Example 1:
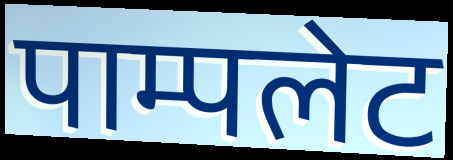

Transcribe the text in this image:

पाम्पलेट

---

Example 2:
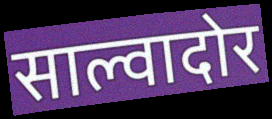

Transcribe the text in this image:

साल्वादोर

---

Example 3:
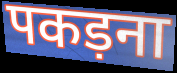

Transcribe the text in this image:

पकड़ना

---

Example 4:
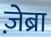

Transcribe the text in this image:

ज़ेब्रा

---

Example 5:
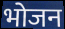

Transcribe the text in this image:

भोजन